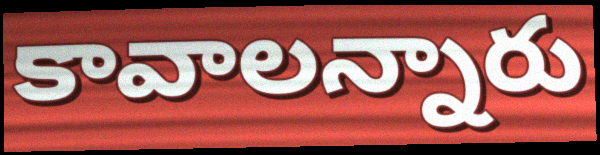
కావాలన్నారు